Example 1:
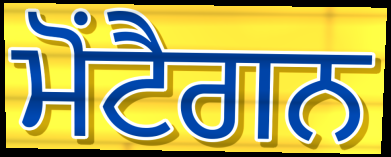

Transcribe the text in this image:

ਮੋਂਟੈਗਨ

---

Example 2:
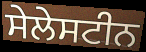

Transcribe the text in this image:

ਸੇਲੇਸਟੀਨ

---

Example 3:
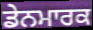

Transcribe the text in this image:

ਡੇਨਮਾਰਕ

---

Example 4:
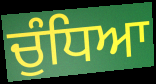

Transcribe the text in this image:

ਚੁੰਧਿਆ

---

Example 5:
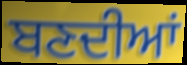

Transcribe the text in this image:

ਬਣਦੀਆਂ